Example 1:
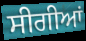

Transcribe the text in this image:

ਸੀਗੀਆਂ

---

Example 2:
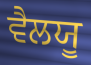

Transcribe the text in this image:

ਵੈਲਯੂ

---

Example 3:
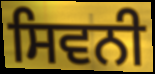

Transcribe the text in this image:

ਸਿਵਨੀ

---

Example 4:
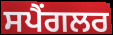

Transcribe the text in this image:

ਸਪੈਂਗਲਰ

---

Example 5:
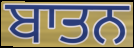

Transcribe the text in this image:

ਬਾਤਨ